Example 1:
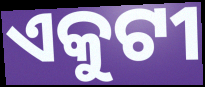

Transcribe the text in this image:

ଏକୁଟୀ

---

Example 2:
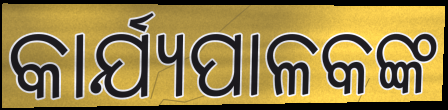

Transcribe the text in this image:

କାର୍ଯ୍ୟପାଳକଙ୍କ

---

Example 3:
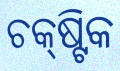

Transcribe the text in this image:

ଚକ୍‌ଷ୍ଟିକ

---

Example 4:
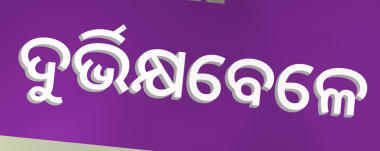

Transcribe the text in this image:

ଦୁର୍ଭିକ୍ଷବେଳେ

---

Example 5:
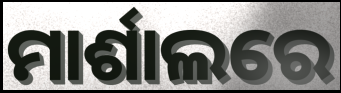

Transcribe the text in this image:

ମାର୍ଶାଲରେ